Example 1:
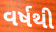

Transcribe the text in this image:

વર્ષથી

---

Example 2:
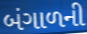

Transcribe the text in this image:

બંગાળની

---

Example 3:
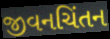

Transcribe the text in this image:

જીવનચિંતન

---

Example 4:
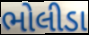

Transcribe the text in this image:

ભોલીડા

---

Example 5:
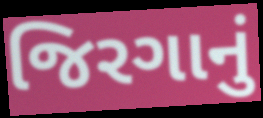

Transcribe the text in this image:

જિરગાનું